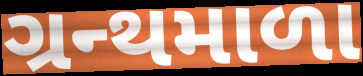
ગ્રન્થમાળા